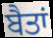
ਬੈਤਾਂ